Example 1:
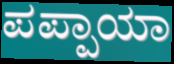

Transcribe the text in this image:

ಪಪ್ಪಾಯಾ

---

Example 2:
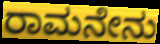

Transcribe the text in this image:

ರಾಮನೇನು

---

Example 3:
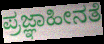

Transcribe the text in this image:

ಪ್ರಜ್ಞಾಹೀನತೆ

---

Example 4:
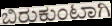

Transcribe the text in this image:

ಬಿರುಕುಂಟಾಗಿ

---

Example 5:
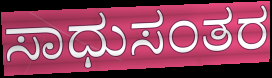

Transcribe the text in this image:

ಸಾಧುಸಂತರ